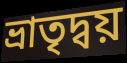
ভ্রাতৃদ্বয়